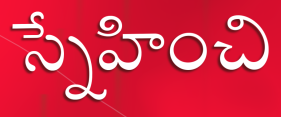
స్నేహించి